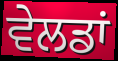
ਵੇਲਡਾਂ